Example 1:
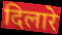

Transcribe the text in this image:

दिलारे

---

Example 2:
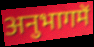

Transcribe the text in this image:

अनुभागमें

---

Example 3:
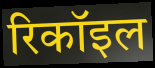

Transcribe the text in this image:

रिकॉइल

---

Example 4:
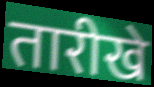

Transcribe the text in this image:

तारीखे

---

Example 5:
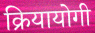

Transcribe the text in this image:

क्रियायोगी